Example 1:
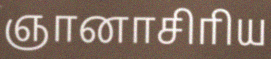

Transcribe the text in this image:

ஞானாசிரிய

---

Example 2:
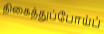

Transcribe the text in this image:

திகைத்துப்போய்ப்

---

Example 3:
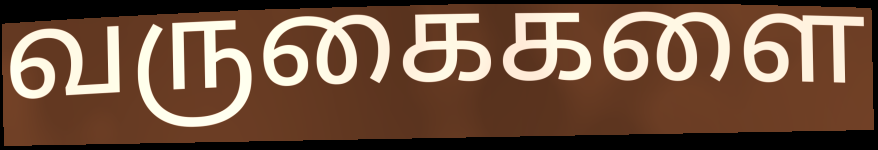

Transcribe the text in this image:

வருகைகளை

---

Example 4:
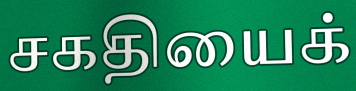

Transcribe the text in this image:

சகதியைக்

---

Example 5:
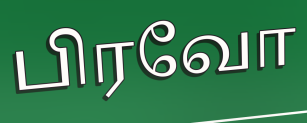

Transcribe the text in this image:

பிரவோ